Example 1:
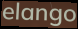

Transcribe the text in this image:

elango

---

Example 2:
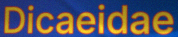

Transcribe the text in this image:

Dicaeidae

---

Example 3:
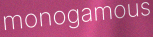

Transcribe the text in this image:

monogamous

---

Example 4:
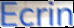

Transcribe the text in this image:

Ecrin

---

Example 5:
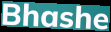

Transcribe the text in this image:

Bhashe